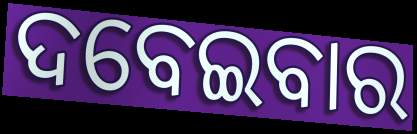
ଦବେଇବାର